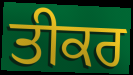
ਤੀਕਰ